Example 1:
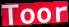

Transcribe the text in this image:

Toor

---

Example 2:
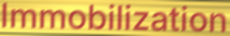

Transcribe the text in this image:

Immobilization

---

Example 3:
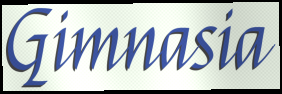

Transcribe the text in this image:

Gimnasia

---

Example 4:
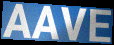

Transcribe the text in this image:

AAVE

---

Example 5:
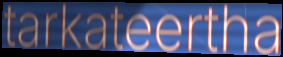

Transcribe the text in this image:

tarkateertha